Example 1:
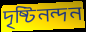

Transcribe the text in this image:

দৃষ্টিনন্দন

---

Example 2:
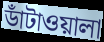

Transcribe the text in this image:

ডাঁটাওয়ালা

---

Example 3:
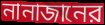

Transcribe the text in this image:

নানাজানের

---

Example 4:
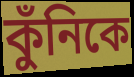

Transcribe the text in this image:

কুঁনিকে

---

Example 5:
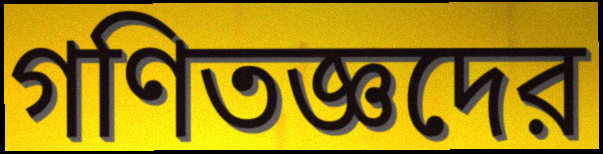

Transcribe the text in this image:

গণিতজ্ঞদের